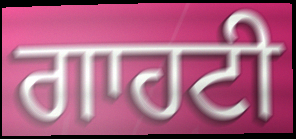
ਗਾਹਟੀ